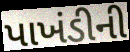
પાખંડીની